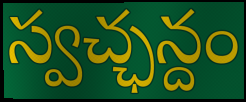
స్వచ్ఛన్దం